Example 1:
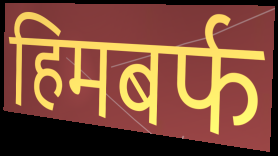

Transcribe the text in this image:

हिमबर्फ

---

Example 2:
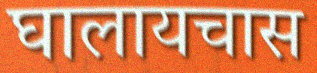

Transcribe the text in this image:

घालायचास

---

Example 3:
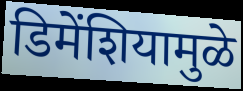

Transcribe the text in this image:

डिमेंशियामुळे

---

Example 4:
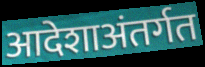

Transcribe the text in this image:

आदेशाअंतर्गत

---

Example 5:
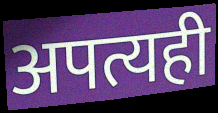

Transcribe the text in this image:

अपत्यही